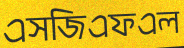
এসজিএফএল